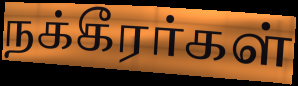
நக்கீரர்கள்